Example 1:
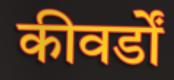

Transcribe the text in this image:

कीवर्डों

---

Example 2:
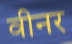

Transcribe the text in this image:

वीनर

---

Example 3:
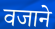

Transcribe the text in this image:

वजाने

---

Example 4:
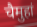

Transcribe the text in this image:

चैमुहां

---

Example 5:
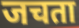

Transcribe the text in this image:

जचता